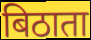
बिठाता